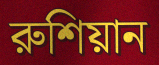
রুশিয়ান